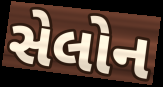
સેલોન